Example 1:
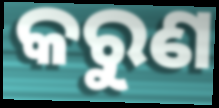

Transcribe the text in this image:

କରୁଣ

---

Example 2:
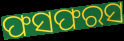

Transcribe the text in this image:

ଫସଫରସ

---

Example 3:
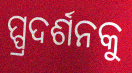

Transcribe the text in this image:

ପ୍ପ୍ରଦର୍ଶନକୁ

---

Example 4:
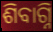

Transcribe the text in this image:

ଶିବାଗ୍ନି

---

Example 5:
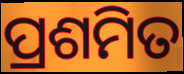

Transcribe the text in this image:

ପ୍ରଶମିତ